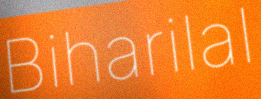
Biharilal